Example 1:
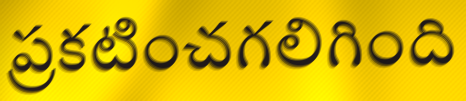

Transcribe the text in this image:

ప్రకటించగలిగింది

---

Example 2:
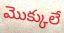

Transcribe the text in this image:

మొక్కులే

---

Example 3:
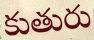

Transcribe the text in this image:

కుతురు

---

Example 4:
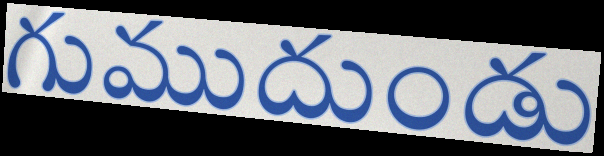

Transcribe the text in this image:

గుముదుండు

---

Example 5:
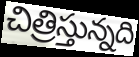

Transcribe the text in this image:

చిత్రిస్తున్నది